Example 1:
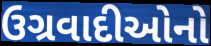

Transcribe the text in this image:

ઉગ્રવાદીઓનો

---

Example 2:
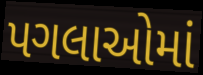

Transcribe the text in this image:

પગલાઓમાં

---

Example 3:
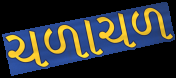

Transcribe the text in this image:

ચળાચળ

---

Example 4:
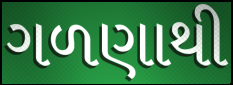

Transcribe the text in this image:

ગળણાથી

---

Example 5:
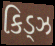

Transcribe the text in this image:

કિડ્ઝ